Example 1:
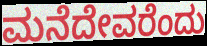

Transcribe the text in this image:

ಮನೆದೇವರೆಂದು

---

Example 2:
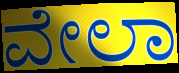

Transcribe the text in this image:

ವೇಲಾ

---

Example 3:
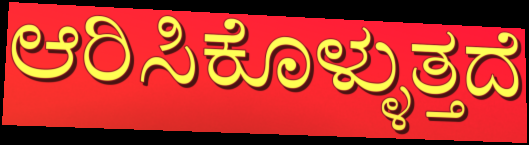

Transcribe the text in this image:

ಆರಿಸಿಕೊಳ್ಳುತ್ತದೆ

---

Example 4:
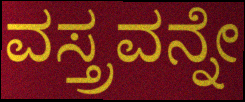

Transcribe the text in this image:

ವಸ್ತ್ರವನ್ನೇ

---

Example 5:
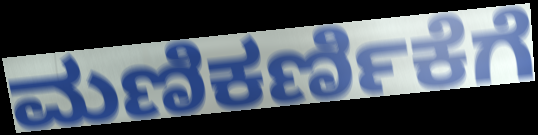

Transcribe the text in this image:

ಮಣಿಕರ್ಣಿಕೆಗೆ